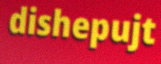
dishepujt